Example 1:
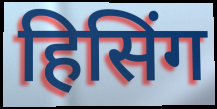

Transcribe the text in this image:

हिसिंग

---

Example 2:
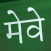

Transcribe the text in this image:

मेवे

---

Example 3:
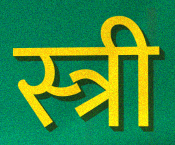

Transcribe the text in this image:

स्‍त्री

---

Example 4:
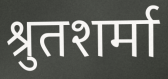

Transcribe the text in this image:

श्रुतशर्मा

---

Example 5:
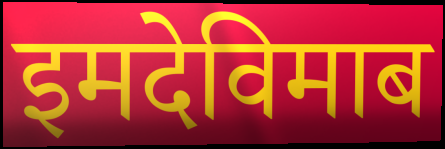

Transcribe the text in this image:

इमदेविमाब